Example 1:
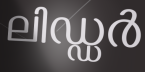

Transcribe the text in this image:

ലിഡ്ഡർ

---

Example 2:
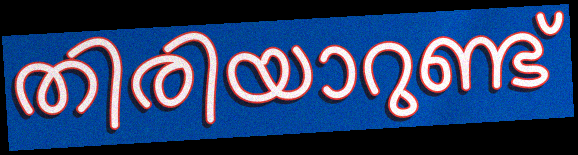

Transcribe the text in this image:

തിരിയാറുണ്ട്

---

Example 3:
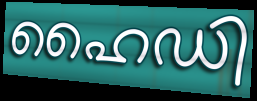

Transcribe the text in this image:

ഹൈഡി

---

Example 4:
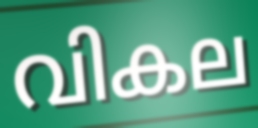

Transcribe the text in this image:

വികല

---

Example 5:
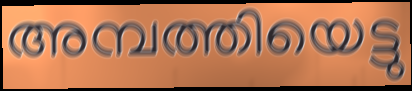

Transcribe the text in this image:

അമ്പത്തിയെട്ടു